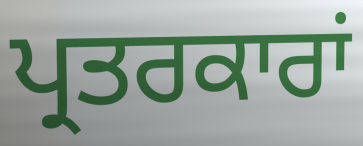
ਪ੍ਰਤਰਕਾਰਾਂ